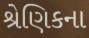
શ્રેણિકના